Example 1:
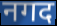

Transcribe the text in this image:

नगद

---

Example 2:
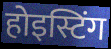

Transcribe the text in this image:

होइस्टिंग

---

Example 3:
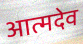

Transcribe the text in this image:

आत्मदेव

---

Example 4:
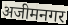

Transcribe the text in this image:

अजीमनगर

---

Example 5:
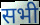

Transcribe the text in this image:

सभी